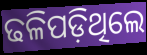
ଢଳିପଡ଼ିଥିଲେ